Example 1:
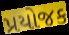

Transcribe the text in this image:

પ્રયોજક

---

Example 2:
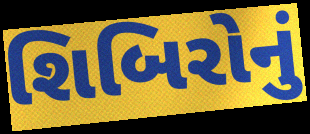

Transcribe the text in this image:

શિબિરોનું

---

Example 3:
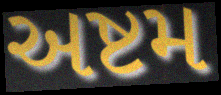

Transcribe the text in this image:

અષ્ટમ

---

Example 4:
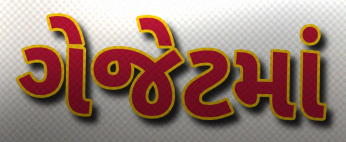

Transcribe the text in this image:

ગેજેટમાં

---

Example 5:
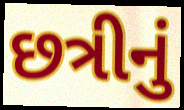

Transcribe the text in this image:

છત્રીનું